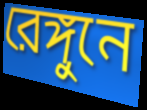
রেঙ্গুনে